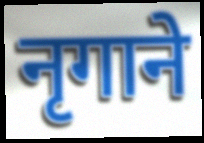
नृगाने